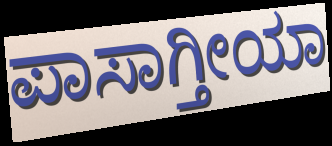
ಪಾಸಾಗ್ತೀಯಾ